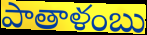
పాతాళంబు